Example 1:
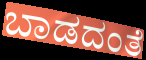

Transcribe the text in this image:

ಬಾಡದಂತೆ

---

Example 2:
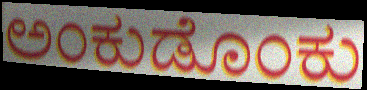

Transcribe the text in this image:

ಅಂಕುಡೊಂಕು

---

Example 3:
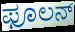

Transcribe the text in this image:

ಫೂಲನ್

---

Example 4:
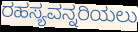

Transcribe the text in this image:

ರಹಸ್ಯವನ್ನರಿಯಲು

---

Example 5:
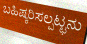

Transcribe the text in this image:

ಬಹಿಷ್ಕರಿಸಲ್ಪಟ್ಟನು